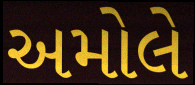
અમોલે